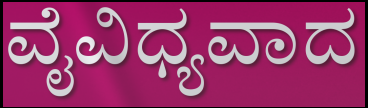
ವೈವಿಧ್ಯವಾದ